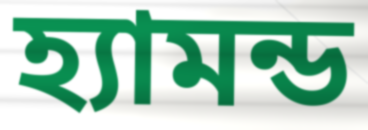
হ্যামন্ড